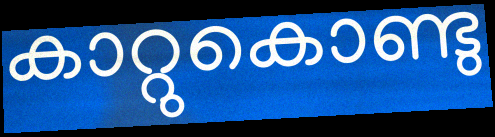
കാറ്റുകൊണ്ടു